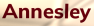
Annesley